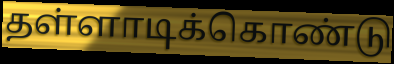
தள்ளாடிக்கொண்டு